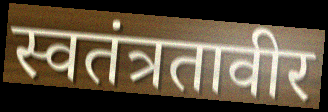
स्वतंत्रतावीर